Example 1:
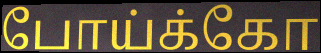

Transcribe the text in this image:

போய்க்கோ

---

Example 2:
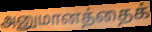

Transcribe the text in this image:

அனுமானத்தைக்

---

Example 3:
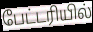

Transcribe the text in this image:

பேட்டரியில்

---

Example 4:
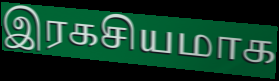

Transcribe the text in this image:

இரகசியமாக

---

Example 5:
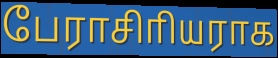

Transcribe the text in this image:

பேராசிரியராக